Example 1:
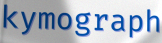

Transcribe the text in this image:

kymograph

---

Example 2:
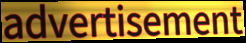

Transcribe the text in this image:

advertisement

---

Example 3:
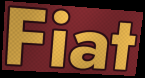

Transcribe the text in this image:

Fiat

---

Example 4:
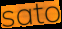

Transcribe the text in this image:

sato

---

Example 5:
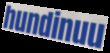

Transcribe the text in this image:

hundinuu